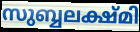
സുബ്ബലക്ഷ്മി